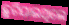
ଛୁଟିଯାଇଥିଲେ